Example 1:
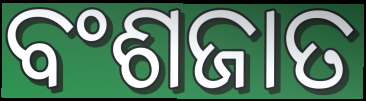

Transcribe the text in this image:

ବଂଶଜାତ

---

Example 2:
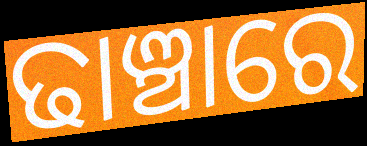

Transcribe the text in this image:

ଢାଞ୍ଚାରେ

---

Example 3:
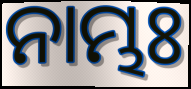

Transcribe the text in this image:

ନାମ୍ଭଃ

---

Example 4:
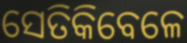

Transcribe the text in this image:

ସେତିକିବେଳେ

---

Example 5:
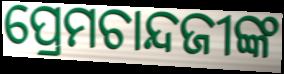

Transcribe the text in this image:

ପ୍ରେମଚାନ୍ଦଜୀଙ୍କ